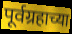
पूर्वग्रहाच्या